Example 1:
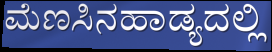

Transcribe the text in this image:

ಮೆಣಸಿನಹಾಡ್ಯದಲ್ಲಿ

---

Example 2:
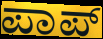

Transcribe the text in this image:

ಪಾಪ್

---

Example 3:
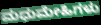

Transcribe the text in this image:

ಮಧುಮೇಹಿಗಳು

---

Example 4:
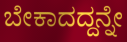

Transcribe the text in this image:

ಬೇಕಾದದ್ದನ್ನೇ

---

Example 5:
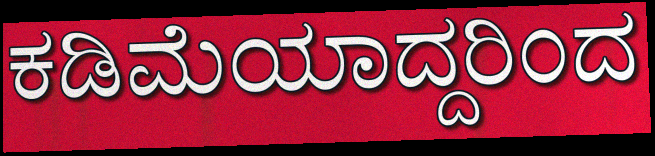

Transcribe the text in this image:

ಕಡಿಮೆಯಾದ್ದರಿಂದ